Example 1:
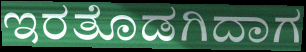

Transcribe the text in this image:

ಇರತೊಡಗಿದಾಗ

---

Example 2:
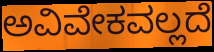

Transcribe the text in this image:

ಅವಿವೇಕವಲ್ಲದೆ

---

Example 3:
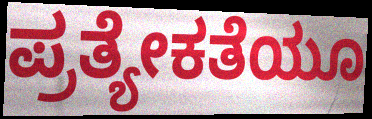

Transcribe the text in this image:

ಪ್ರತ್ಯೇಕತೆಯೂ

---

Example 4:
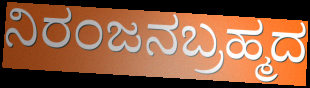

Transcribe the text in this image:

ನಿರಂಜನಬ್ರಹ್ಮದ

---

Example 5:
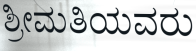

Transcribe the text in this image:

ಶ್ರೀಮತಿಯವರು